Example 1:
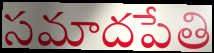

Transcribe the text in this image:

సమాదపేతి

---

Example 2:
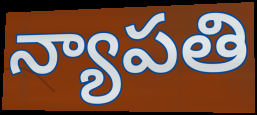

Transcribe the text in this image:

న్యాపతి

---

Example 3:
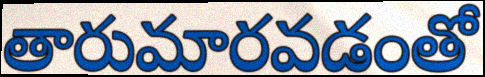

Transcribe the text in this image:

తారుమారవడంతో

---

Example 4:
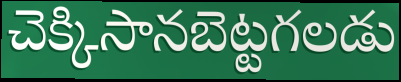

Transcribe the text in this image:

చెక్కిసానబెట్టగలడు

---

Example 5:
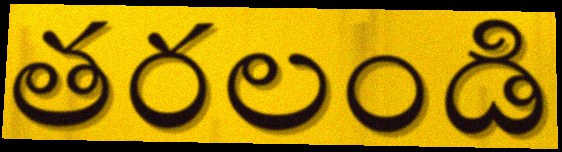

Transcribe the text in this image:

తరలండి